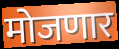
मोजणार